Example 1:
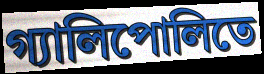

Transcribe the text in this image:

গ্যালিপোলিতে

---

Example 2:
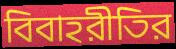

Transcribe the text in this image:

বিবাহরীতির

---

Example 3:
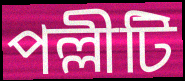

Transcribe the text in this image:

পল্লীটি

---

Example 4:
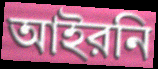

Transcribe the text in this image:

আইরনি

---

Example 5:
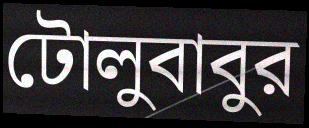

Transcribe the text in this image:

টোলুবাবুর